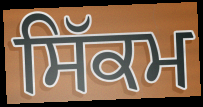
ਸਿੱਕਮ